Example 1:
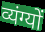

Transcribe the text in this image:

व्यंग्यों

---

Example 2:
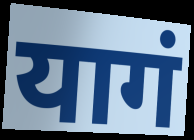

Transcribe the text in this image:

यागं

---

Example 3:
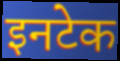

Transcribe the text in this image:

इनटेक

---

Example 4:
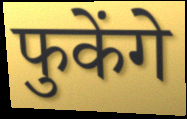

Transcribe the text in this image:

फुकेंगे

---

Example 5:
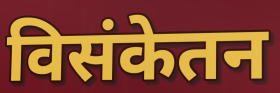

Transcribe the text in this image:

विसंकेतन